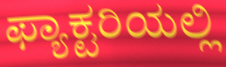
ಫ್ಯಾಕ್ಟರಿಯಲ್ಲಿ